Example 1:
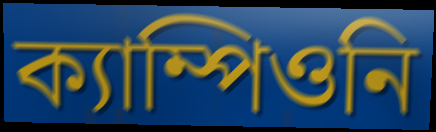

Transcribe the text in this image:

ক্যাম্পিওনি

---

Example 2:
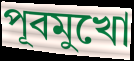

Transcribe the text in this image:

পূবমুখো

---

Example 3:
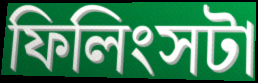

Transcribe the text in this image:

ফিলিংসটা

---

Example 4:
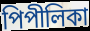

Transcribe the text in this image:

পিপীলিকা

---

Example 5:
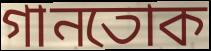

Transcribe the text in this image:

গানতোক